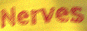
Nerves